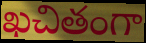
ఖచితంగా